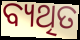
ବ୍ୟଥିତ